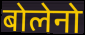
बोलेनो